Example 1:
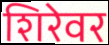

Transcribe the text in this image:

शिरेवर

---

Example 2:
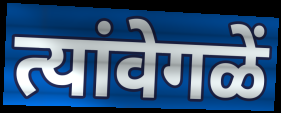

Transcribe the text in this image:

त्यांवेगळें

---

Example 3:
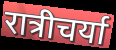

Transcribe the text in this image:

रात्रीचर्या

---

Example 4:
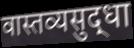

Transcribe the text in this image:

वास्तव्यसुद्धा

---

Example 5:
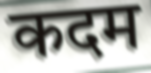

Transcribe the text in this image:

कदम